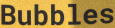
Bubbles